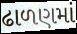
ઢાળણમાં